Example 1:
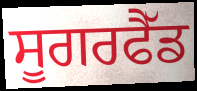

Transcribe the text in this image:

ਸੂਗਰਫੈੱਡ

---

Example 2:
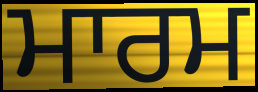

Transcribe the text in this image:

ਮਾਰਮ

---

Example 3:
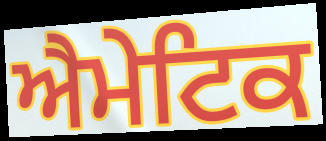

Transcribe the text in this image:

ਐਮੇਟਿਕ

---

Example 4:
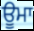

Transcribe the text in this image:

ਊਮਾ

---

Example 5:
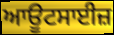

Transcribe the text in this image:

ਆਊਟਸਾਈਜ਼